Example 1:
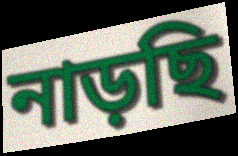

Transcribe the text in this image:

নাড়ছি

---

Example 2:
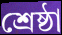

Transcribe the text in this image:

শ্রেষ্ঠা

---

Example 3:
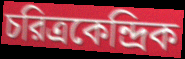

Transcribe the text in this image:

চরিত্রকেন্দ্রিক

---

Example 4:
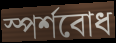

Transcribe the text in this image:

স্পর্শবোধ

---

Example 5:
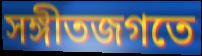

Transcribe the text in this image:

সঙ্গীতজগতে